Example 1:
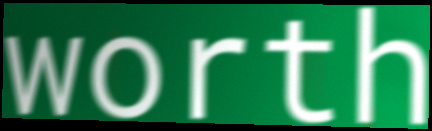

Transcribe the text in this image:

worth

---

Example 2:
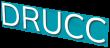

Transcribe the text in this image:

DRUCC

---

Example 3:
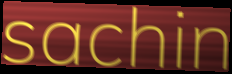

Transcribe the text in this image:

sachin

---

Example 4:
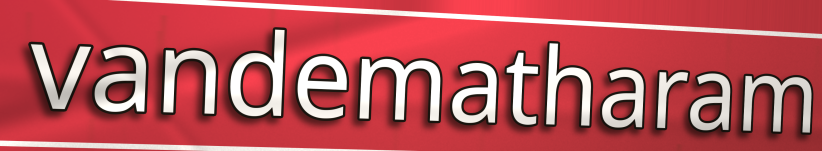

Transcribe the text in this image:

vandematharam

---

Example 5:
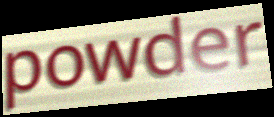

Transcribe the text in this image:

powder